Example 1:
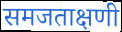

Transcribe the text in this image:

समजताक्षणी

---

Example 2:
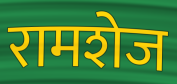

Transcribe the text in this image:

रामशेज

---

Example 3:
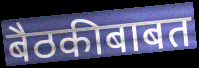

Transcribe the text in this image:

बैठकीबाबत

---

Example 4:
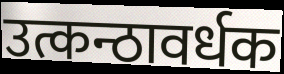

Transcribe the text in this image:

उत्कन्ठावर्धक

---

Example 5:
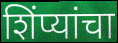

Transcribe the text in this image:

शिंप्यांचा